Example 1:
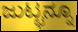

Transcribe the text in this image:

ಜುಟ್ಟನ್ನೂ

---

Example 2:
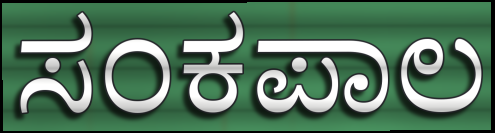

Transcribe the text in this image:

ಸಂಕಪಾಲ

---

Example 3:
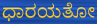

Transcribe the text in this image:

ಧಾರಯತೋ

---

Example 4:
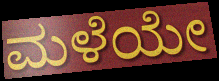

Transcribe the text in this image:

ಮಳೆಯೇ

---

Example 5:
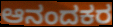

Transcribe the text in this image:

ಆನಂದಕರ